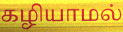
கழியாமல்